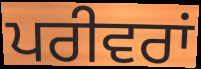
ਪਰੀਵਰਾਂ